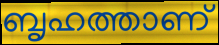
ബൃഹത്താണ്